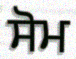
ਸੋਮ